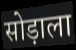
सोड़ाला